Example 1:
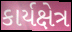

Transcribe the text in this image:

કાર્યક્ષેત્ર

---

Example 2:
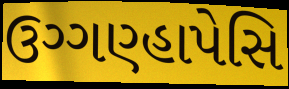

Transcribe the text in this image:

ઉગ્ગણ્હાપેસિ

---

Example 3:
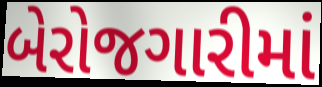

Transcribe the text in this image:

બેરોજગારીમાં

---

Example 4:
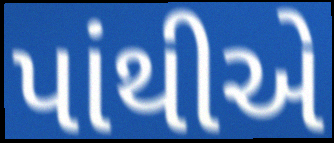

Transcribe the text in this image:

પાંથીએ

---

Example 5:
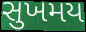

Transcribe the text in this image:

સુખમય